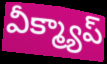
వీక్మ్యాప్